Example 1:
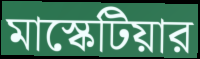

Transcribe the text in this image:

মাস্কেটিয়ার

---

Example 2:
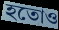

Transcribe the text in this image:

হতোও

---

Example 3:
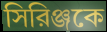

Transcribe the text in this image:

সিরিঞ্জকে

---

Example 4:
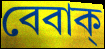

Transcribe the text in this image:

বেবাক্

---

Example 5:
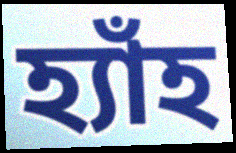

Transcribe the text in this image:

হ্যাঁহ